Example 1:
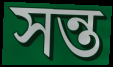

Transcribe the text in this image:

সন্ত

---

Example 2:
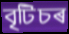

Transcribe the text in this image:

বৃটিচৰ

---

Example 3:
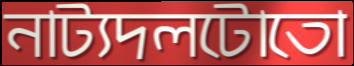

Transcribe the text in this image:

নাট্যদলটোতো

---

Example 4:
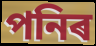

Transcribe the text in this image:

পনিৰ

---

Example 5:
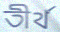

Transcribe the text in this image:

তীৰ্থ